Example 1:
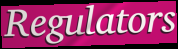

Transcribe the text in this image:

Regulators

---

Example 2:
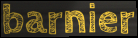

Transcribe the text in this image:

barnier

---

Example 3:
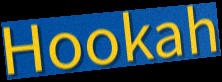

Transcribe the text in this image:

Hookah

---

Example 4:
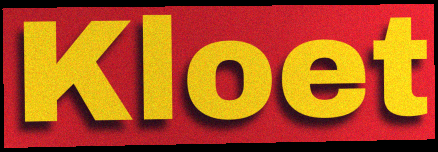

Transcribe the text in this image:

Kloet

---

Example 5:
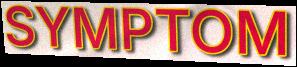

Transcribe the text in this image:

SYMPTOM